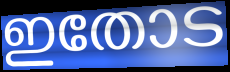
ഇതോട